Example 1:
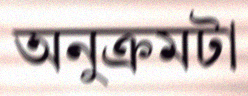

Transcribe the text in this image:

অনুক্রমটা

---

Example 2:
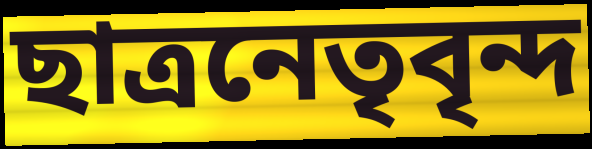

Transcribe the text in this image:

ছাত্রনেতৃবৃন্দ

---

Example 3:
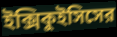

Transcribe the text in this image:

ইক্সিকুইসিসের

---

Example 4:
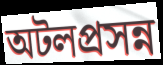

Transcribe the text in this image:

অটলপ্রসন্ন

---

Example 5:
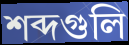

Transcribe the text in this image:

শব্দগুলি